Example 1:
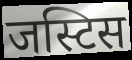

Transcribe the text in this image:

जस्टिस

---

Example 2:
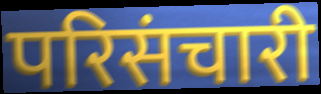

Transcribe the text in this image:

परिसंचारी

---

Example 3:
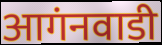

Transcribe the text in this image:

आगंनवाडी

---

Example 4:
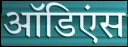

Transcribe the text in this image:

ऑडिएंस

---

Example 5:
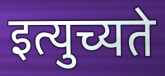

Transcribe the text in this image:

इत्युच्यते